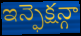
ఇన్ఫెక్షన్గా